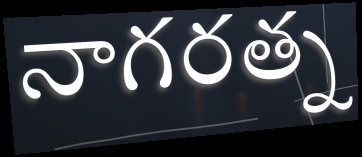
నాగరత్న